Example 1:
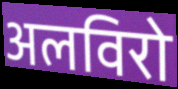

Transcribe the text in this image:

अलविरो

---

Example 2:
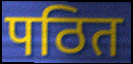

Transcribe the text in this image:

पठित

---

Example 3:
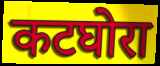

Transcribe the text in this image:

कटघोरा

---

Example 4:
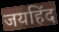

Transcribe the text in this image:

जयहिंद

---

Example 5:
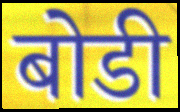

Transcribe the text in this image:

बोडी